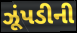
ઝૂંપડીની